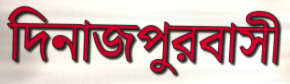
দিনাজপুরবাসী